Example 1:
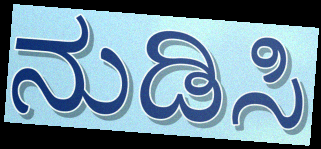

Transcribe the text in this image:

ನುಡಿಸಿ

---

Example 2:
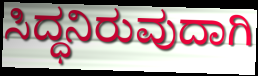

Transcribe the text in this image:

ಸಿದ್ಧನಿರುವುದಾಗಿ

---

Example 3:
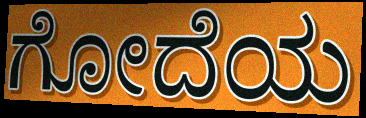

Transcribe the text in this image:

ಗೋದೆಯ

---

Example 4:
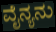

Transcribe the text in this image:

ವೈನ್ಯನು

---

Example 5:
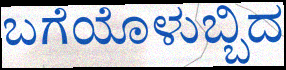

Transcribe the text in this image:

ಬಗೆಯೊಳುಬ್ಬಿದ